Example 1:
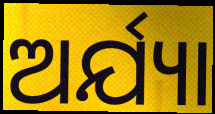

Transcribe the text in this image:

ଅର୍ଯ୍ୟା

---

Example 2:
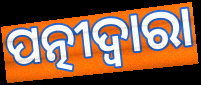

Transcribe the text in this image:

ପତ୍ନୀଦ୍ୱାରା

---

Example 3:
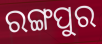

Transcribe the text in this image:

ରଙ୍ଗପୁର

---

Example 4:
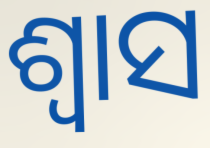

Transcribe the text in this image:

ଶ୍ୱାସ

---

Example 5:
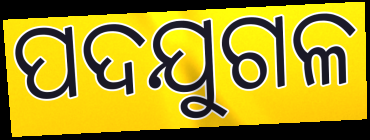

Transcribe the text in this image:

ପଦଯୁଗଳ